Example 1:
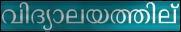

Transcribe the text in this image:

വിദ്യാലയത്തില്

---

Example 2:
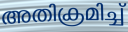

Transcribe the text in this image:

അതിക്രമിച്ച്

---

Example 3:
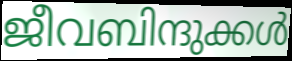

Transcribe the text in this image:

ജീവബിന്ദുക്കൾ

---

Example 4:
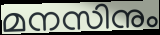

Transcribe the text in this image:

മനസിനും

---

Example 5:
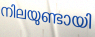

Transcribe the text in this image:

നിലയുണ്ടായി